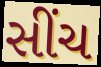
સીંચ